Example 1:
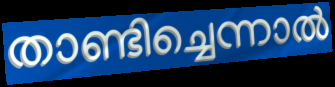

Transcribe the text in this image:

താണ്ടിച്ചെന്നാൽ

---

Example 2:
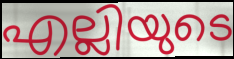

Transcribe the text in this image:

എല്ലിയുടെ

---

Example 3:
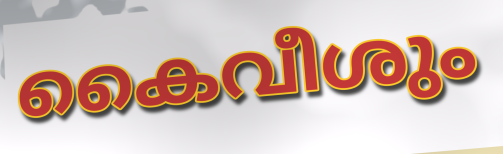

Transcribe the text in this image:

കൈവീശും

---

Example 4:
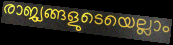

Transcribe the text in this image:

രാജ്യങ്ങളുടെയെല്ലാം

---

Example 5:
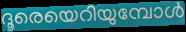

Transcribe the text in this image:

ദൂരെയെറിയുമ്പോൾ